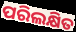
ପରିଲକ୍ଷିତ